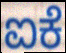
ಐಕೆ